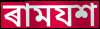
ৰামযশ